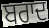
ਬਰਾਦ